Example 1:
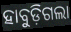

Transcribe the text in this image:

ହାବୁଡ଼ିଗଲା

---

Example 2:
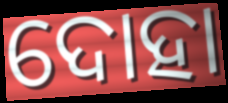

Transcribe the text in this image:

ଦୋହା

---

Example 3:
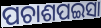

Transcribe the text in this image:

ପଚାଶପଇସା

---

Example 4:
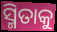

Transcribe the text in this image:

ସ୍ମିତାକୁ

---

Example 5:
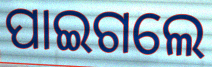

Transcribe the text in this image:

ପାଇଗଲେ